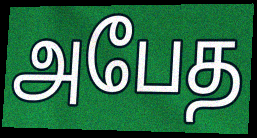
அபேத